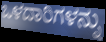
ಒಳದಾರಿಗಳನ್ನು